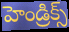
హెండ్రిక్స్